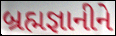
બ્રહ્મજ્ઞાનીને